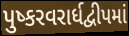
પુષ્કરવરાર્ધદ્વીપમાં